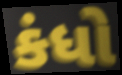
કંધો